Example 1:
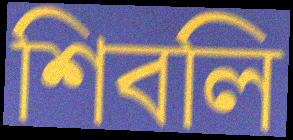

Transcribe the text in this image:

শিবলি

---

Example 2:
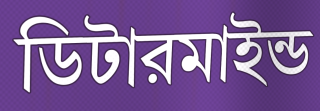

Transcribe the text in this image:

ডিটারমাইন্ড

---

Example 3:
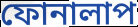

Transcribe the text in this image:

ফোনালাপ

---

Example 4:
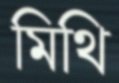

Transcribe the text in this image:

মিথি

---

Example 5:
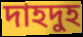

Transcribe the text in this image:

দাহদুহ